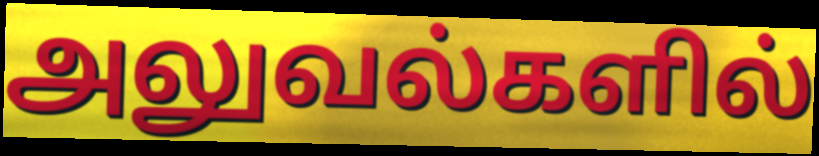
அலுவல்களில்